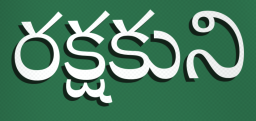
రక్షకుని